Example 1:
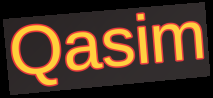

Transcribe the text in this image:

Qasim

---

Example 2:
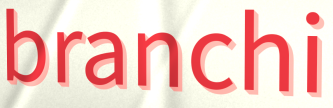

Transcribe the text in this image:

branchi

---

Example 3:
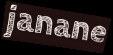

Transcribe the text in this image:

janane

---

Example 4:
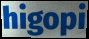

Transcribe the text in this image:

higopi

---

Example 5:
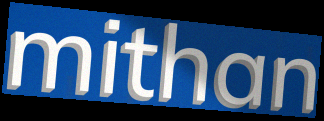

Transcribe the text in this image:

mithan